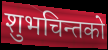
शुभचिन्तको